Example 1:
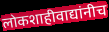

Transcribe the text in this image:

लोकशाहीवाद्यांनीच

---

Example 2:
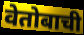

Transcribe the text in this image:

वेतोबाची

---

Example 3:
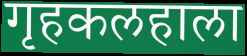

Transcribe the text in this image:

गृहकलहाला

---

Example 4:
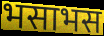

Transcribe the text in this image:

भसाभस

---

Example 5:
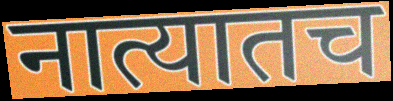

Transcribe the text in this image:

नात्यातच